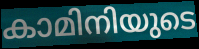
കാമിനിയുടെ